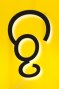
ଚୃ